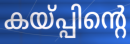
കയ്പ്പിന്റെ